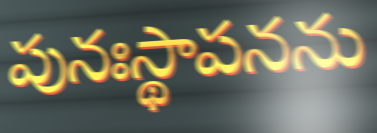
పునఃస్థాపనను